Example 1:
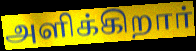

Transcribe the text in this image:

அளிக்கிறார்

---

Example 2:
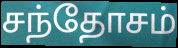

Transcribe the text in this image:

சந்தோசம்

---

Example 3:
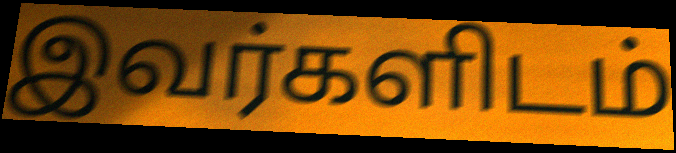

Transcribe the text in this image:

இவர்களிடம்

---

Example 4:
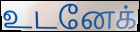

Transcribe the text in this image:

உடனேக்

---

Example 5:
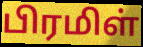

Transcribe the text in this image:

பிரமிள்